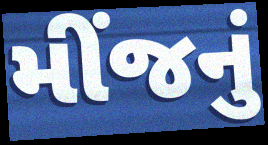
મીંજનું